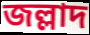
জল্লাদ